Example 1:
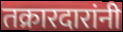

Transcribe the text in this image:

तक्रारदारांनी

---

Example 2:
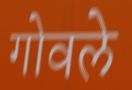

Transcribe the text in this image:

गोवले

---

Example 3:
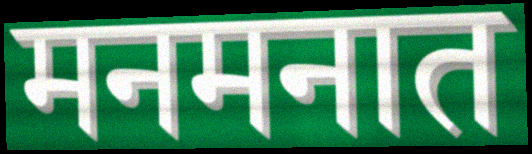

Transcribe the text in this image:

मनमनात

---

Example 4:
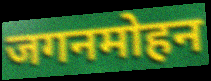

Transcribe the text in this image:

जगनमोहन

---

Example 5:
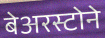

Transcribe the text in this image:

बेअरस्टोने